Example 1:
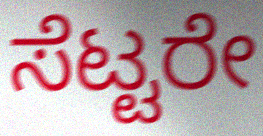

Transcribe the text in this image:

ಸೆಟ್ಟರೇ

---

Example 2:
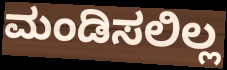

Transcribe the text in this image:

ಮಂಡಿಸಲಿಲ್ಲ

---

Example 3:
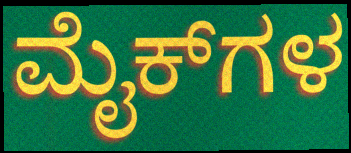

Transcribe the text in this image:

ಮೈಕ್‌ಗಳ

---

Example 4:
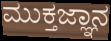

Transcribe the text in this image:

ಮುಕ್ತಜ್ಞಾನ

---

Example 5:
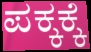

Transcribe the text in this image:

ಪಕ್ಕಕ್ಕೆ